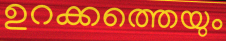
ഉറക്കത്തെയും